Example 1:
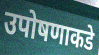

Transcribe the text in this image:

उपोषणाकडे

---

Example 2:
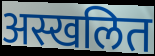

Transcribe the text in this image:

अस्खलित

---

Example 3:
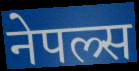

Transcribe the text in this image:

नेपल्स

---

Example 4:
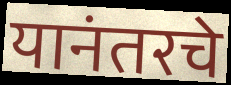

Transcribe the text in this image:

यानंतरचे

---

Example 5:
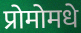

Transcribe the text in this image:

प्रोमोमधे